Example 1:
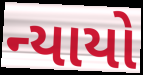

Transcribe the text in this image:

ન્યાયો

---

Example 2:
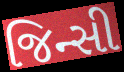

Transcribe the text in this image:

જિન્સી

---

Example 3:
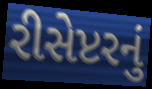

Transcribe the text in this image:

રીસેપ્ટરનું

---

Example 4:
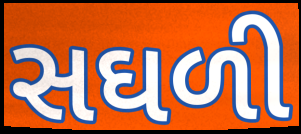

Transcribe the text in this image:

સઘળી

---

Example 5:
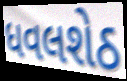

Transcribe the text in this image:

ધવલશેઠ